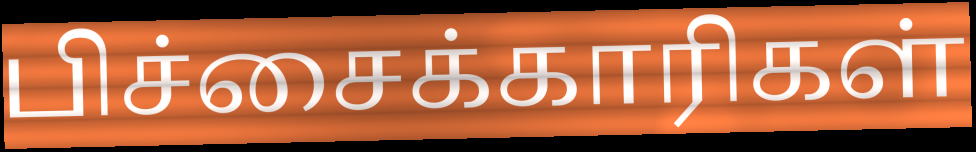
பிச்சைக்காரிகள்